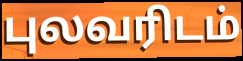
புலவரிடம்